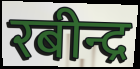
रबीन्द्र